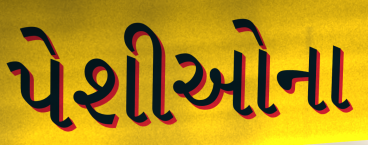
પેશીઓના